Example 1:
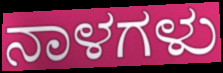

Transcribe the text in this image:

ನಾಳಗಳು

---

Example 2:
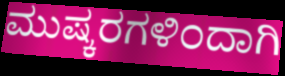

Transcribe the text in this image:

ಮುಷ್ಕರಗಳಿಂದಾಗಿ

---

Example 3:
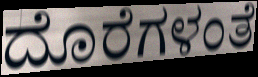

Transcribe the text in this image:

ದೊರೆಗಳಂತೆ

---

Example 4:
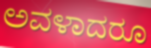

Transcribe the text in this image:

ಅವಳಾದರೂ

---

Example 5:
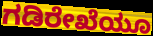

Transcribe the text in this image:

ಗಡಿರೇಖೆಯೂ